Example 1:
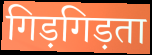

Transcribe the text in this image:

गिड़गिड़ता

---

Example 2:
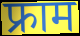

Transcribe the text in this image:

फ्राम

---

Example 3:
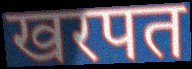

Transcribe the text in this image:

खरपत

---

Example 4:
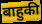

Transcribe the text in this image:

बाहुकी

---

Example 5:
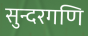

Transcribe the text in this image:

सुन्दरगणि